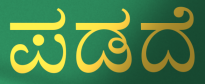
ಪಡದೆ